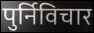
पुर्निविचार